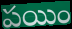
పయిం